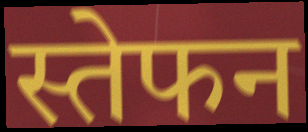
स्तेफन